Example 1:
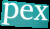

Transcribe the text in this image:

pex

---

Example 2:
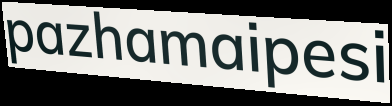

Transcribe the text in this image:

pazhamaipesi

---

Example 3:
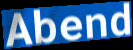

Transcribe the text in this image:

Abend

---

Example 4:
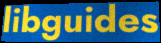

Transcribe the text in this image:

libguides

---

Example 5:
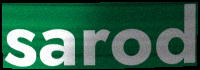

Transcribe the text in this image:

sarod